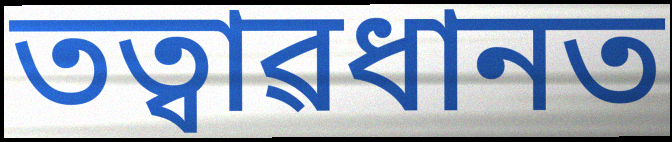
তত্বাৱধানত